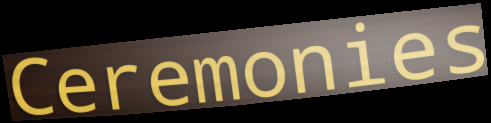
Ceremonies